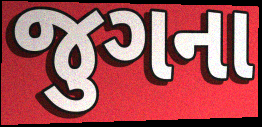
જુગના